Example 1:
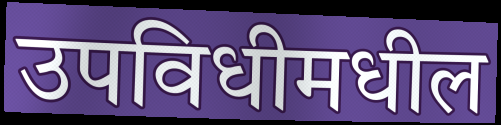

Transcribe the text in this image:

उपविधीमधील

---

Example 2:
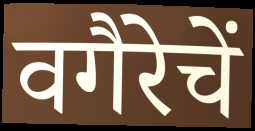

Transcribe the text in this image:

वगैरेचें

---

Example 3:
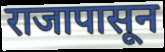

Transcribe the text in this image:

राजापासून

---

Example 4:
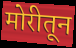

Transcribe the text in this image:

मोरीतून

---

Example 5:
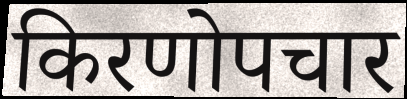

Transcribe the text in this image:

किरणोपचार